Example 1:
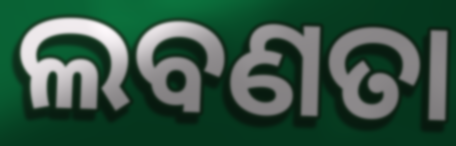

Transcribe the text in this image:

ଲବଣତା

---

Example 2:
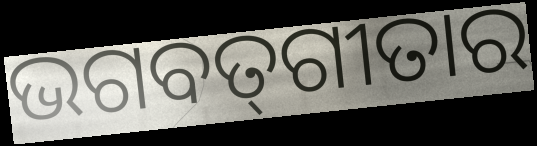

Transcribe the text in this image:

ଭଗବତ୍‍ଗୀତାର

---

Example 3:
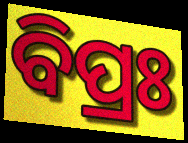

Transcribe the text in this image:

ବିପ୍ରଃ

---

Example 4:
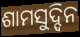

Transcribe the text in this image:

ଶାମସୁଦ୍ଦିନ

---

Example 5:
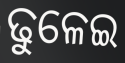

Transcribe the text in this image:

ଢୁଳେଇ